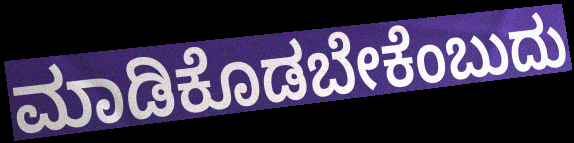
ಮಾಡಿಕೊಡಬೇಕೆಂಬುದು